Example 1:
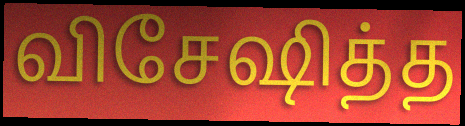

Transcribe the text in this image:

விசேஷித்த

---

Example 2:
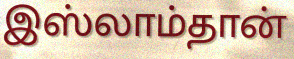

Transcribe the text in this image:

இஸ்லாம்தான்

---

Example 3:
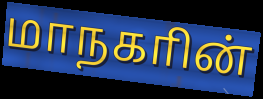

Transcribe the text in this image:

மாநகரின்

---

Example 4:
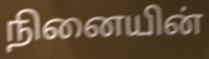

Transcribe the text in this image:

நினையின்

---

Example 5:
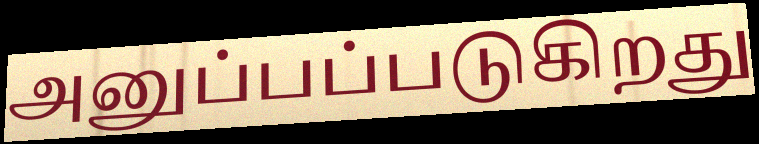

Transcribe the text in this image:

அனுப்பப்படுகிறது